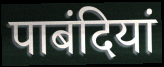
पाबंदियां